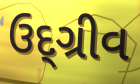
ઉદ્ગ્રીવ